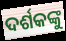
ଦର୍ଶକଙ୍କୁ